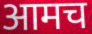
आमच